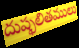
దుష్ఫలితములు